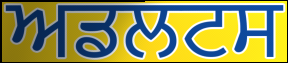
ਅਡਲਟਸ